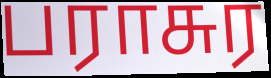
பராசுர